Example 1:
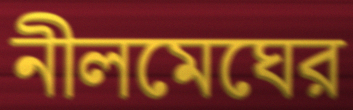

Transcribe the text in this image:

নীলমেঘের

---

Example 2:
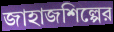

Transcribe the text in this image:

জাহাজশিল্পের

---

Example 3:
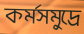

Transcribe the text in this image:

কর্মসমুদ্রে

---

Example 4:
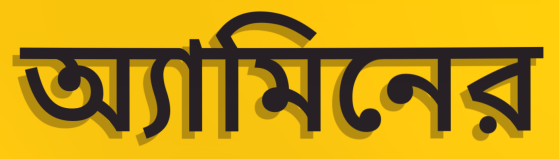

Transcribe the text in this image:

অ্যামিনের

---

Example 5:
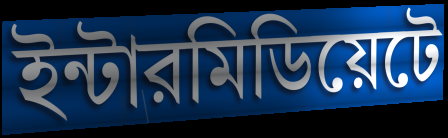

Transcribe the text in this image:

ইন্টারমিডিয়েটে